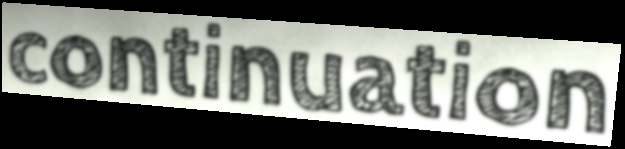
continuation